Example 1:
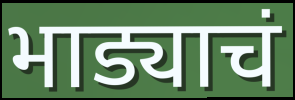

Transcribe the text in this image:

भाड्याचं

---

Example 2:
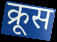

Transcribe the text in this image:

क्रूस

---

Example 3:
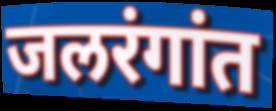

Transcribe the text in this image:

जलरंगांत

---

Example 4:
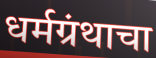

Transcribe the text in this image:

धर्मग्रंथाचा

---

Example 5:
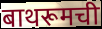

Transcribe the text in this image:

बाथरूमची